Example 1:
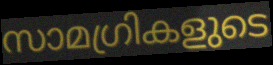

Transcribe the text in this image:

സാമഗ്രികളുടെ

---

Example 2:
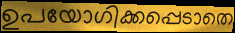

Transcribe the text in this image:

ഉപയോഗിക്കപ്പെടാതെ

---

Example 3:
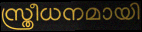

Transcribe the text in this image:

സ്ത്രീധനമായി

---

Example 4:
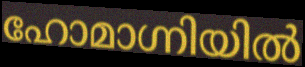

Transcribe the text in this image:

ഹോമാഗ്നിയിൽ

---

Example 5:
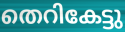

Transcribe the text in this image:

തെറികേട്ടു